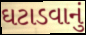
ઘટાડવાનું